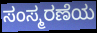
ಸಂಸ್ಮರಣೆಯ